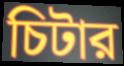
চিটার